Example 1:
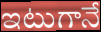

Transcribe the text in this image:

ఇటుగానే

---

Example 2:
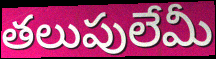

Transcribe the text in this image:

తలుపులేమీ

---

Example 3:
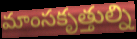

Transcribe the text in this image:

మాంసకృత్తుల్ని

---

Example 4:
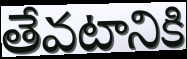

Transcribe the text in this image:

తేవటానికి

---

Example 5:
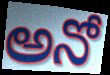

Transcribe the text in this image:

అనో